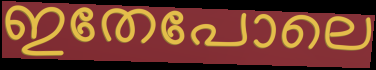
ഇതേപോലെ